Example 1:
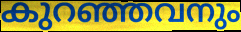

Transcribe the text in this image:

കുറഞ്ഞവനും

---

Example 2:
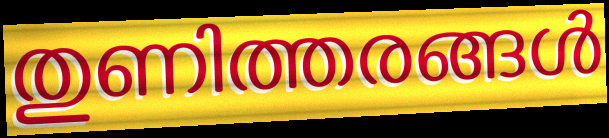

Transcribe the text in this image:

തുണിത്തരങ്ങൾ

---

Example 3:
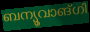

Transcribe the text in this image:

ബന്യൂവാങ്ഗി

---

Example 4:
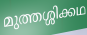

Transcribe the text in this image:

മുത്തശ്ശിക്കഥ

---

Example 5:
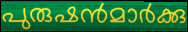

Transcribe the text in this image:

പുരുഷൻമാർക്കു